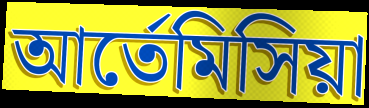
আর্তেমিসিয়া